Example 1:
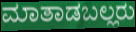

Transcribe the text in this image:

ಮಾತಾಡಬಲ್ಲರು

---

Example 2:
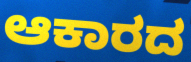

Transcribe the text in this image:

ಆಕಾರದ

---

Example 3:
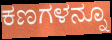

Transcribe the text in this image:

ಕಣಗಳನ್ನೂ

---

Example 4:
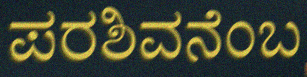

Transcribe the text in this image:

ಪರಶಿವನೆಂಬ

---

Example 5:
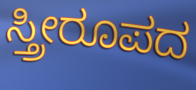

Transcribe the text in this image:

ಸ್ತ್ರೀರೂಪದ